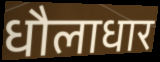
धौलाधार